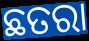
ଛତରା